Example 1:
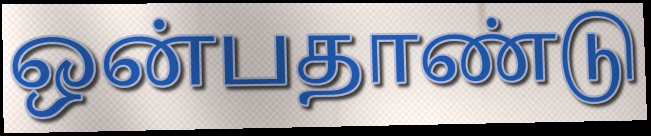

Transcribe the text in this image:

ஒன்பதாண்டு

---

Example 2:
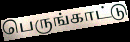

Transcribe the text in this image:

பெருங்காட்டு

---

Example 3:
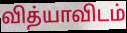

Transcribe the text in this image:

வித்யாவிடம்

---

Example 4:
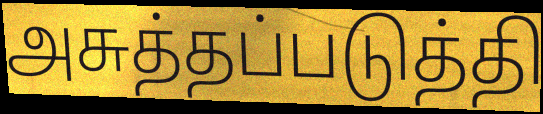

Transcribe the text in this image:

அசுத்தப்படுத்தி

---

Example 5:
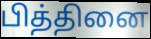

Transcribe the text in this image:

பித்தினை